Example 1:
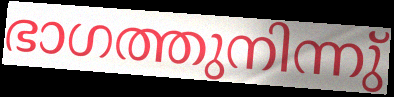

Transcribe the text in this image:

ഭാഗത്തുനിന്നു്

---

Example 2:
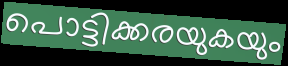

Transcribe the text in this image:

പൊട്ടിക്കരയുകയും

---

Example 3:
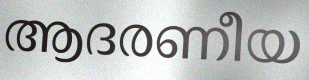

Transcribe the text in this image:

ആദരണീയ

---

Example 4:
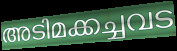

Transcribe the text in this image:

അടിമക്കച്ചവട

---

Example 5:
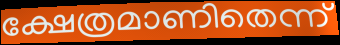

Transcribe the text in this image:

ക്ഷേത്രമാണിതെന്ന്